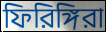
ফিরিঙ্গিরা